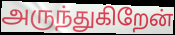
அருந்துகிறேன்